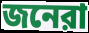
জনেরা